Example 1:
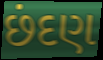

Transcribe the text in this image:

છંદણ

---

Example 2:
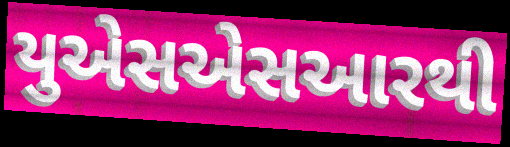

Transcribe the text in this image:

યુએસએસઆરથી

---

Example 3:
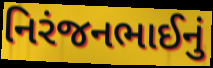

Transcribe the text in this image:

નિરંજનભાઈનું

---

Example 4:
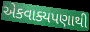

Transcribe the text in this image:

એકવાક્યપણાથી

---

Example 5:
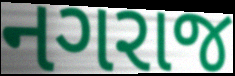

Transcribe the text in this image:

નગરાજ